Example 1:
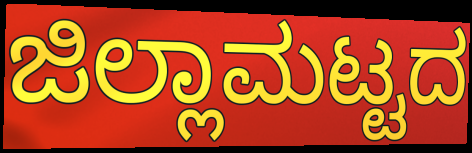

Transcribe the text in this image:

ಜಿಲ್ಲಾಮಟ್ಟದ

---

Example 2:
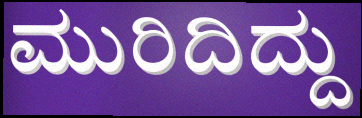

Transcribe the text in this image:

ಮುರಿದಿದ್ದು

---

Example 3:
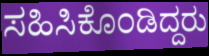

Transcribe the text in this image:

ಸಹಿಸಿಕೊಂಡಿದ್ದರು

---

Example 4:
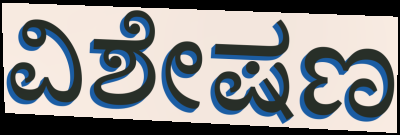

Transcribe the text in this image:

ವಿಶೇಷಣ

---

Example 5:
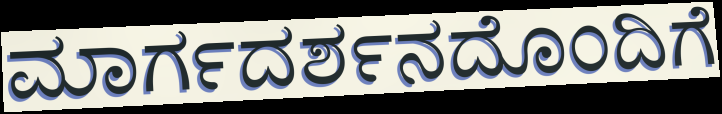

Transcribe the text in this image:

ಮಾರ್ಗದರ್ಶನದೊಂದಿಗೆ